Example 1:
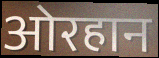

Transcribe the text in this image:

ओरहान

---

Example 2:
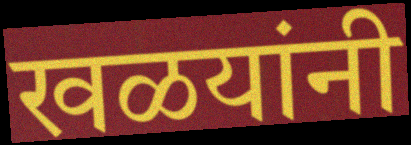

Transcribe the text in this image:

खळयांनी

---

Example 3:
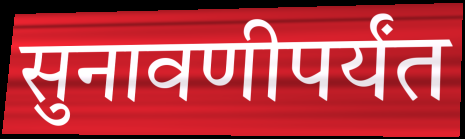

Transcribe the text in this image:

सुनावणीपर्यंत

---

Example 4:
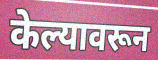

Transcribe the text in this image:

केल्यावरून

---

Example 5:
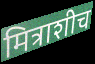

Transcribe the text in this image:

मित्राशीच